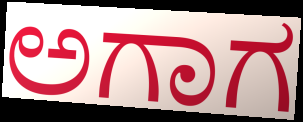
ಅಗಾಗ